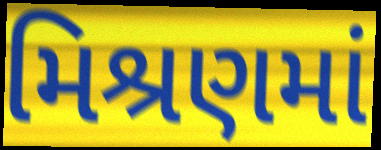
મિશ્રણમાં